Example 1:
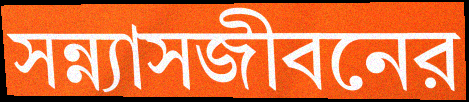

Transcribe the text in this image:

সন্ন্যাসজীবনের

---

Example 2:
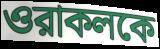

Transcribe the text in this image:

ওরাকলকে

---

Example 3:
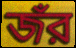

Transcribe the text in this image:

জঁর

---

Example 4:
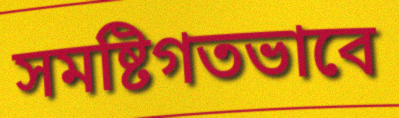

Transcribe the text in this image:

সমষ্টিগতভাবে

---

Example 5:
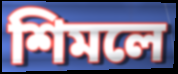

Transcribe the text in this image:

শিমলে